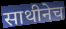
साथीनेच